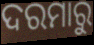
ଦରମାରୁ